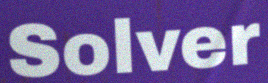
Solver